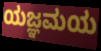
ಯಜ್ಞಮಯ